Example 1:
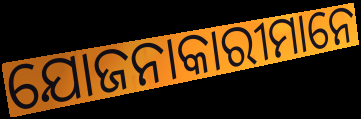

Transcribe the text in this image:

ଯୋଜନାକାରୀମାନେ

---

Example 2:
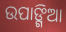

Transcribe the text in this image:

ଉପାଙ୍ଗିଆ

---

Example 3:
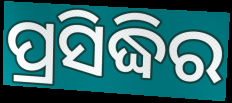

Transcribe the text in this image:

ପ୍ରସିଦ୍ଧିର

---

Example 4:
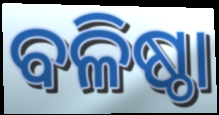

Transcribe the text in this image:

ବଳିଷ୍ଠା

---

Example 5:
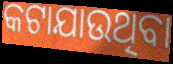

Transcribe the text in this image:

କଟାଯାଉଥିବା